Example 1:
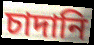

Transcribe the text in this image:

চাদানি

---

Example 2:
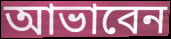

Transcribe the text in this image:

আভাবেন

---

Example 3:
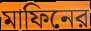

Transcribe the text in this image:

মাফিনের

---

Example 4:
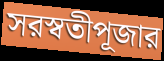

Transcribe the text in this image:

সরস্বতীপূজার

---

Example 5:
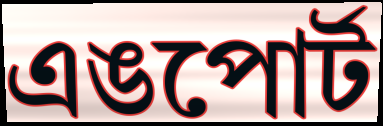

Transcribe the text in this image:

এঙপোর্ট